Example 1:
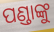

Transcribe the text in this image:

ପଣ୍ଡାଙ୍କୁ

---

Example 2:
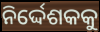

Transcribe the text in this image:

ନିର୍ଦ୍ଦେଶକକୁ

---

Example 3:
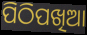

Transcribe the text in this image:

ପିଠିପଖିଆ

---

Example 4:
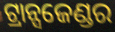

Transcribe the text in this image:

ଟ୍ରାନ୍ସଜେଣ୍ଡର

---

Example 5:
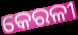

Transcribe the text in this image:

କେରଳୀ